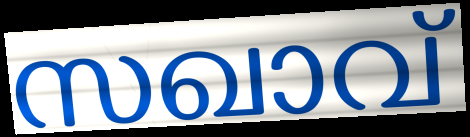
സഖാവ്